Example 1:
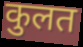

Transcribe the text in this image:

कुलत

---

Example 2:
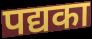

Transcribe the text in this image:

पद्यका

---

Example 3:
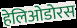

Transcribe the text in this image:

हेलिओडोरस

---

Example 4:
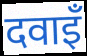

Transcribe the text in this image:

दवाइँ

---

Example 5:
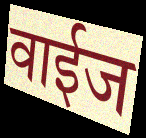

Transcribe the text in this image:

वाईज